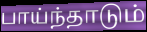
பாய்ந்தாடும்